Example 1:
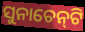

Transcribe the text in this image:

ସୁନାଚେନ୍‍ଟି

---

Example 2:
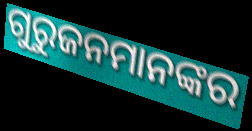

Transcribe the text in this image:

ଗୁରୁଜନମାନଙ୍କର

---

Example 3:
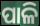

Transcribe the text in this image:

ପାଳି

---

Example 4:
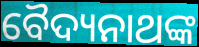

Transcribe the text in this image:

ବୈଦ୍ୟନାଥଙ୍କ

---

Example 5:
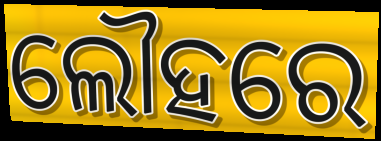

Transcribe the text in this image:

ଲୌହରେ